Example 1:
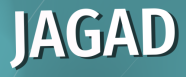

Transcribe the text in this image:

JAGAD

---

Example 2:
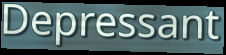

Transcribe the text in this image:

Depressant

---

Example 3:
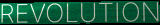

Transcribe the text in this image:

REVOLUTION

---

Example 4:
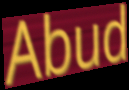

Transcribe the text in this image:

Abud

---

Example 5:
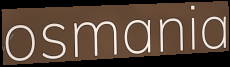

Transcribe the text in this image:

osmania